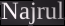
Najrul